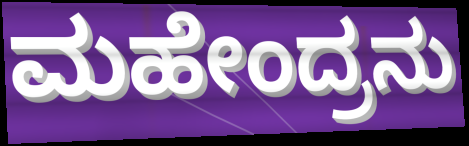
ಮಹೇಂದ್ರನು